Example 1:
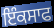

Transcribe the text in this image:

ਇੰਕਸਾਫ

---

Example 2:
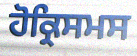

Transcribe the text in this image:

ਹੋਕ੍ਰਿਸਮਸ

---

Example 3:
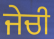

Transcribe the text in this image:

ਜੇਚੀ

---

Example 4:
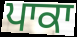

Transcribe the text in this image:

ਪਾਕਾ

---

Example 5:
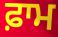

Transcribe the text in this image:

ਫ਼ਾਮ